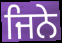
ਜਿਨੇ